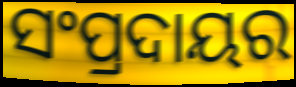
ସଂପ୍ରଦାୟର